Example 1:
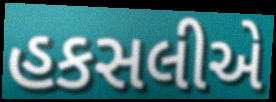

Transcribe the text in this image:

હકસલીએ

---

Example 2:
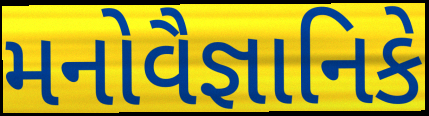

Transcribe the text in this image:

મનોવૈજ્ઞાનિકે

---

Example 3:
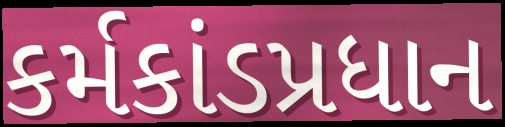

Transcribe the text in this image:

કર્મકાંડપ્રધાન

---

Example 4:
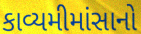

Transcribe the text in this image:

કાવ્યમીમાંસાનો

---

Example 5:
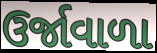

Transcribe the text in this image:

ઉર્જાવાળા